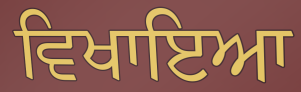
ਵਿਖਾਇਆ